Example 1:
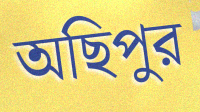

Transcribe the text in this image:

অছিপুর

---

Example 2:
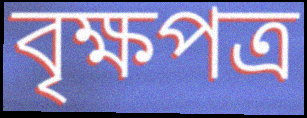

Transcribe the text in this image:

বৃক্ষপত্র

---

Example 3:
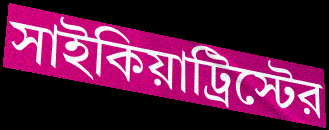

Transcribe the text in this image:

সাইকিয়াট্রিস্টের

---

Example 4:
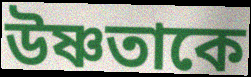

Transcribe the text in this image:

উষ্ণতাকে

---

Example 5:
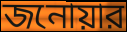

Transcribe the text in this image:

জনোয়ার